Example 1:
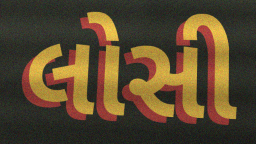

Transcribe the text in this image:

લોસી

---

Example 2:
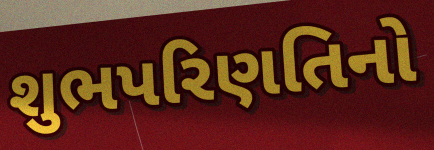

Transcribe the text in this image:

શુભપરિણતિનો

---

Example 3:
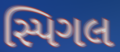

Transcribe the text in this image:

સ્પિગલ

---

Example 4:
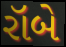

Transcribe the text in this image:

રૉબે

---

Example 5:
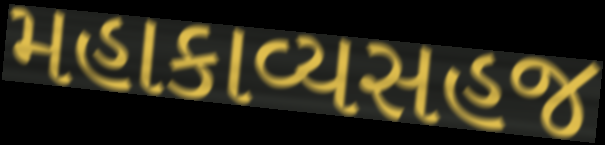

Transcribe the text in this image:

મહાકાવ્યસહજ